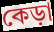
কেড়া